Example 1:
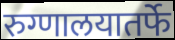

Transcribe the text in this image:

रुग्णालयातर्फे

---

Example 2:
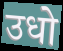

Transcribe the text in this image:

उधो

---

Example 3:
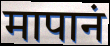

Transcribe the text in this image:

मापानं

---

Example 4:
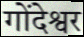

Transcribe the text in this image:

गोंदेश्वर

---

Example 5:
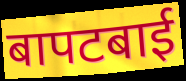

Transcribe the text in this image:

बापटबाई